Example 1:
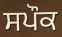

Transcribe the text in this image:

ਸਪੌਕ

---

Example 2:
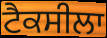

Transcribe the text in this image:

ਟੈਕਸੀਲਾ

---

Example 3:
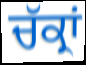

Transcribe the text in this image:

ਚੱਕ੍ਰਾਂ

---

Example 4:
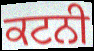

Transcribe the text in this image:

ਕਟਨੀ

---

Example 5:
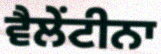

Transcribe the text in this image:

ਵੈਲੇਂਟੀਨਾ